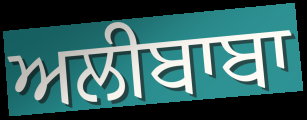
ਅਲੀਬਾਬਾ